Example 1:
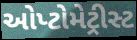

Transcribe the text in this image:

ઓપ્ટોમેટ્રીસ્ટ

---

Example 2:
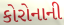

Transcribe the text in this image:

કોરોનાની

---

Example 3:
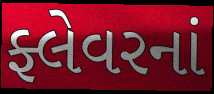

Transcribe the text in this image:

ફ્લેવરનાં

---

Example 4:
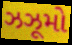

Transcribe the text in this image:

ઝઝૂમો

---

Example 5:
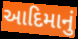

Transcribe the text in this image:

આદિમાનું